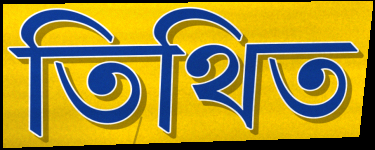
তিথিত